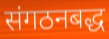
संगठनबद्ध